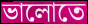
ভালোতে